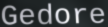
Gedore